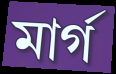
মার্গ